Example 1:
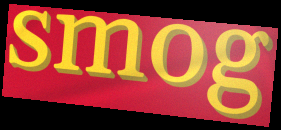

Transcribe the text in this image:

smog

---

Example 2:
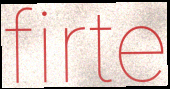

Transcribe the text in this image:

firte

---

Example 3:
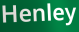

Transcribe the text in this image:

Henley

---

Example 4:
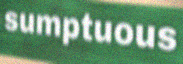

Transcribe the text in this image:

sumptuous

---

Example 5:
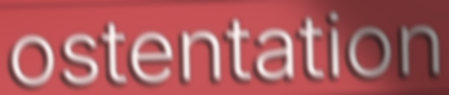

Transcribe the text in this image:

ostentation